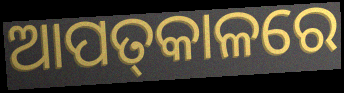
ଆପତ୍‌କାଳରେ